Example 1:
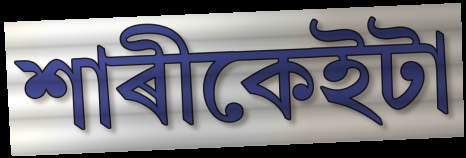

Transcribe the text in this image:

শাৰীকেইটা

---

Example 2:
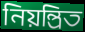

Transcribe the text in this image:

নিয়ন্ত্ৰিত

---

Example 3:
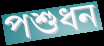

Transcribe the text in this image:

পশুধন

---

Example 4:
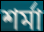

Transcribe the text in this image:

শৰ্মা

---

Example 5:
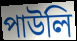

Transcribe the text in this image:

পাউলি